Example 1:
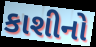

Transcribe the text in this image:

કાશીનો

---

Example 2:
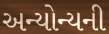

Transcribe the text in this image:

અન્યોન્યની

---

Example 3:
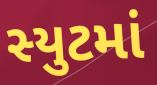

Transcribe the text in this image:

સ્યુટમાં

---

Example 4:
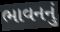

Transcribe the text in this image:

ભાવનનું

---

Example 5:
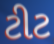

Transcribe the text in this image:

ટીટ